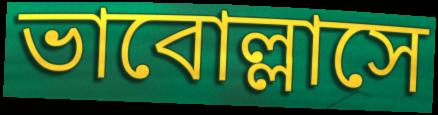
ভাবোল্লাসে